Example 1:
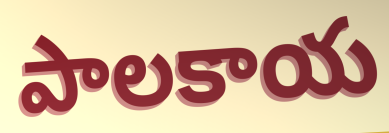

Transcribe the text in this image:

పాలకాయ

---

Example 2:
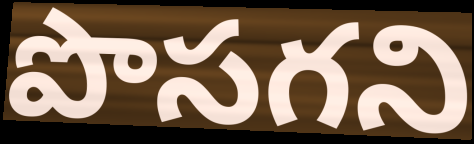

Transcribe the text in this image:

పొసగని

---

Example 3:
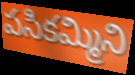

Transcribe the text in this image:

పసికమ్మిని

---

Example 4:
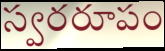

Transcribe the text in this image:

స్వరరూపం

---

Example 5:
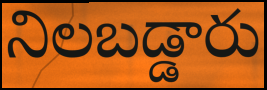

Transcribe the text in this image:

నిలబడ్డారు